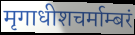
मृगाधीशचर्माम्बरं